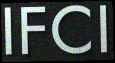
IFCI